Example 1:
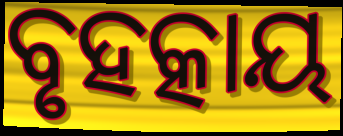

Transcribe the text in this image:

ବୃହତ୍କାୟ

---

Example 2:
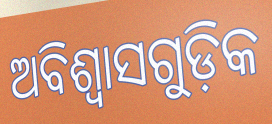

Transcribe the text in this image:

ଅବିଶ୍ଵାସଗୁଡ଼ିକ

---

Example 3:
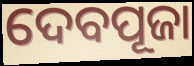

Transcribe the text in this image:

ଦେବପୂଜା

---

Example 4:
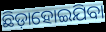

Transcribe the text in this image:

ଛିଡ଼ାହୋଇଯିବା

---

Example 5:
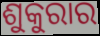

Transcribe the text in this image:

ଶୁକୁରାର